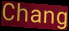
Chang